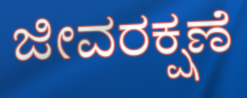
ಜೀವರಕ್ಷಣೆ